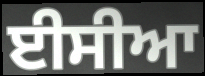
ਈਸੀਆ